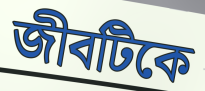
জীবটিকে